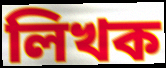
লিখক